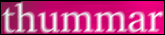
thummar